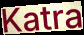
Katra